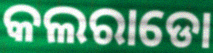
କଲରାଡୋ